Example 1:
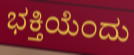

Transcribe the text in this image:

ಭಕ್ತಿಯೆಂದು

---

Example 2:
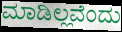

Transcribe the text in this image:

ಮಾಡಿಲ್ಲವೆಂದು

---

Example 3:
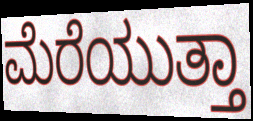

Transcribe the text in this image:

ಮೆರೆಯುತ್ತಾ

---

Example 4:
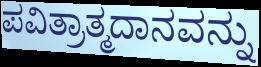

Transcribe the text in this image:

ಪವಿತ್ರಾತ್ಮದಾನವನ್ನು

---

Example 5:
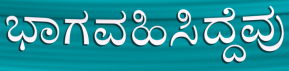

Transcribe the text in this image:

ಭಾಗವಹಿಸಿದ್ದೆವು